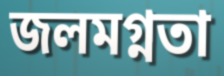
জলমগ্নতা